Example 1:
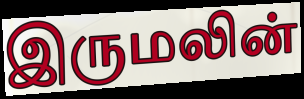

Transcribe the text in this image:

இருமலின்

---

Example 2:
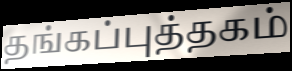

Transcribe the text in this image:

தங்கப்புத்தகம்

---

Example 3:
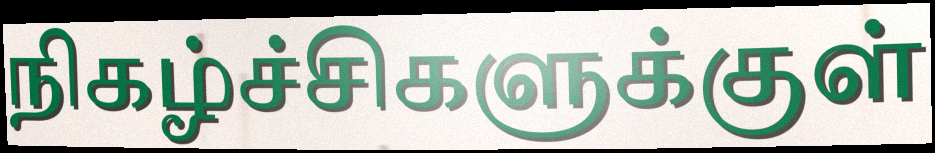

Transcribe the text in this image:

நிகழ்ச்சிகளுக்குள்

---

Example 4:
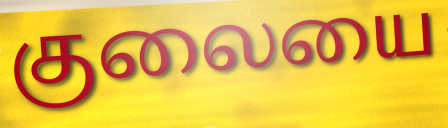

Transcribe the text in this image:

குலையை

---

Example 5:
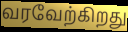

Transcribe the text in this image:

வரவேற்கிறது